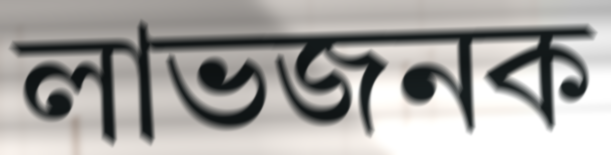
লাভজনক